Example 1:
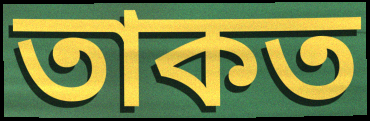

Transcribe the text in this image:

তাকত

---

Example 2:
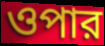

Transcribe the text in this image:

ওপার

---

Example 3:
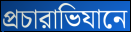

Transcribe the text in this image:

প্রচারাভিযানে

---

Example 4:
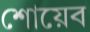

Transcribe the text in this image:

শোয়েব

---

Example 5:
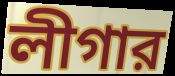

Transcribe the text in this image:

লীগার